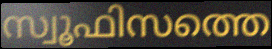
സ്വൂഫിസത്തെ